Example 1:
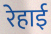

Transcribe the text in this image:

रेहाई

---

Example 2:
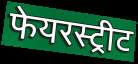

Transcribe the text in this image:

फेयरस्ट्रीट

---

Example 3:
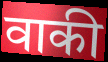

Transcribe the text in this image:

वाकी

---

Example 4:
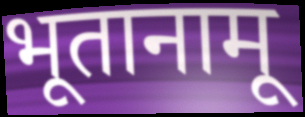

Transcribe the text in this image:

भूतानामू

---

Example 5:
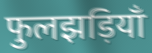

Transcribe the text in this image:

फुलझड़ियाँ